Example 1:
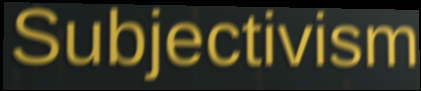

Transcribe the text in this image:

Subjectivism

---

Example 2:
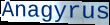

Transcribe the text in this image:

Anagyrus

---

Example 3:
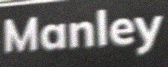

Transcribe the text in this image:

Manley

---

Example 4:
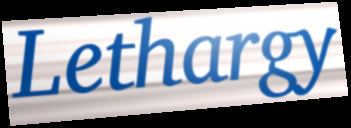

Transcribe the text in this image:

Lethargy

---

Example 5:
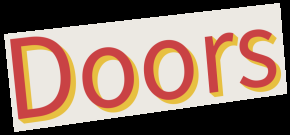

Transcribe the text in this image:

Doors